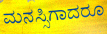
ಮನಸ್ಸಿಗಾದರೂ